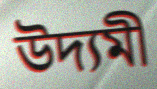
উদ্যমী